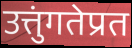
उत्तुंगतेप्रत